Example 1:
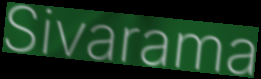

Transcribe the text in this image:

Sivarama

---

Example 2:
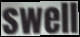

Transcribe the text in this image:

swell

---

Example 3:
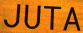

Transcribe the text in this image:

JUTA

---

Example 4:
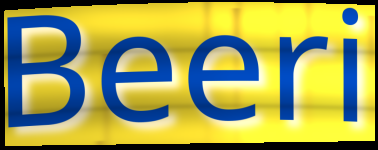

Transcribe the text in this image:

Beeri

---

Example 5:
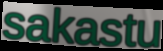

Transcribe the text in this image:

sakastu